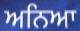
ਅਨਿਆ